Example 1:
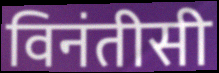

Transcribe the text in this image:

विनंतीसी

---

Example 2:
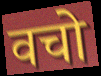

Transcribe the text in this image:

वचो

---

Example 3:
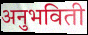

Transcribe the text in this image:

अनुभविती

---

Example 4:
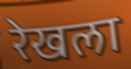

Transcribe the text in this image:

रेखला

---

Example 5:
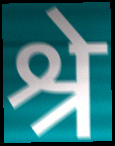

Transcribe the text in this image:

श्रे